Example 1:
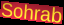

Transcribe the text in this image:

Sohrab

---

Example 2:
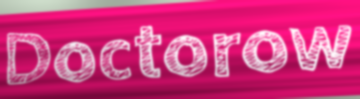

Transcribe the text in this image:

Doctorow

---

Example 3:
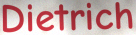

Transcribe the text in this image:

Dietrich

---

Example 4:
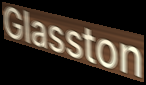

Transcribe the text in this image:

Glasston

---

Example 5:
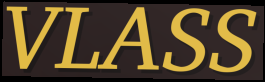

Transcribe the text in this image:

VLASS